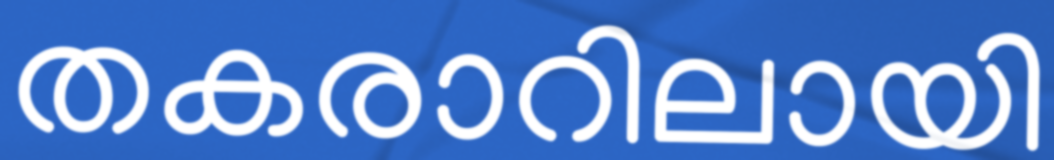
തകരാറിലായി